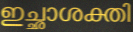
ഇച്ഛാശക്തി